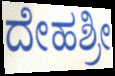
ದೇಹಶ್ರೀ